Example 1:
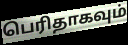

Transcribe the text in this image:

பெரிதாகவும்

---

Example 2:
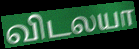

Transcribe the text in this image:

விடலயா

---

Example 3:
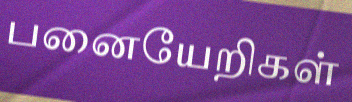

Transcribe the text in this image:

பனையேறிகள்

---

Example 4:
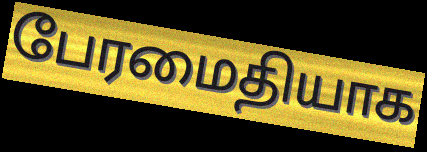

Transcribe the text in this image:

பேரமைதியாக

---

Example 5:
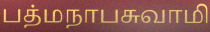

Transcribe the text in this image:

பத்மநாபசுவாமி